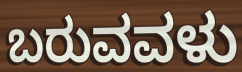
ಬರುವವಳು